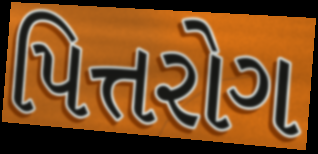
પિત્તરોગ